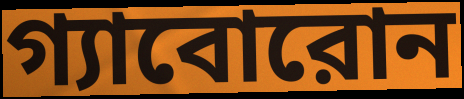
গ্যাবোরোন